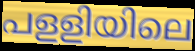
പളളിയിലെ